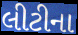
લીટીના